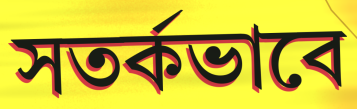
সতর্কভাবে